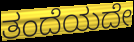
ತಂದೆಯದೇ